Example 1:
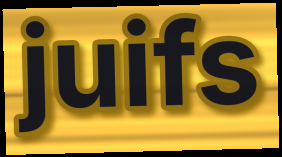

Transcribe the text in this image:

juifs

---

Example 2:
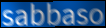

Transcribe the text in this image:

sabbaso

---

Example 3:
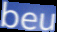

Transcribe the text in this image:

beu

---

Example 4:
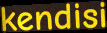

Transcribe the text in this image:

kendisi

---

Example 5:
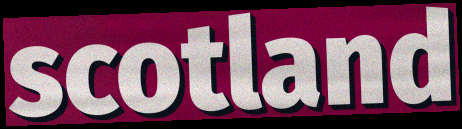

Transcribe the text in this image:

scotland